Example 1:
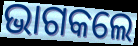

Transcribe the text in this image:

ଭାଗକଲେ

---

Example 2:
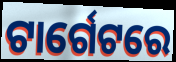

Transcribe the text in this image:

ଟାର୍ଗେଟରେ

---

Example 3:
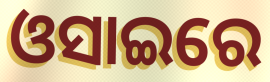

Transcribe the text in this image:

ଓସାଇରେ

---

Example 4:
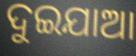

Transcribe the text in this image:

ଦୁଇଯାଆ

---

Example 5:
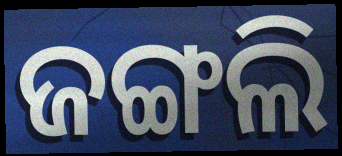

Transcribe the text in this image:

ଜଙ୍ଗଲି